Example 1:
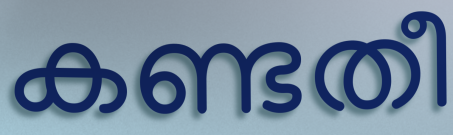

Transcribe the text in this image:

കണ്ടതീ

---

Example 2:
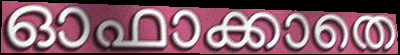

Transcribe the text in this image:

ഓഫാക്കാതെ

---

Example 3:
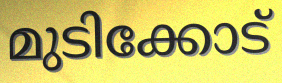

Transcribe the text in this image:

മുടിക്കോട്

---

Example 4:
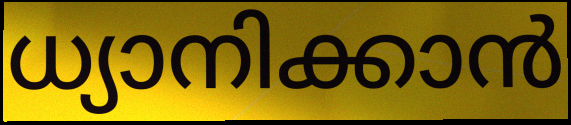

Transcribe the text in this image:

ധ്യാനിക്കാൻ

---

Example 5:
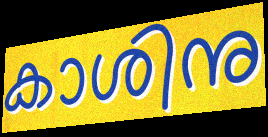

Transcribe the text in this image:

കാശിനു